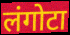
लंगोटा